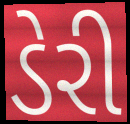
ડેરી